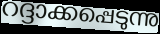
റദ്ദാക്കപ്പെടുന്നു